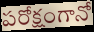
పరోక్షంగానో